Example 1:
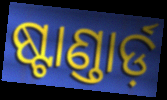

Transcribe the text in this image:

ଷ୍ଟାଣ୍ଡାର୍ଡ଼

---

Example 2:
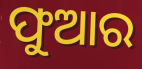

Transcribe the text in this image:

ଫୁଆର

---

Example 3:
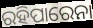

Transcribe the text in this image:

ରହିପାରେନା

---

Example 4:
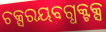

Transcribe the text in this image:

ଚକ୍ସରୟବଗ୍ଧକ୍ଟକ୍ସ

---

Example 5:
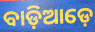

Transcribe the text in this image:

ବାଡ଼ିଆଡ଼େ